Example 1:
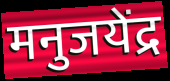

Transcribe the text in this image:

मनुजयेंद्र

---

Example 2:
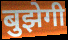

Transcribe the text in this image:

बुझेगी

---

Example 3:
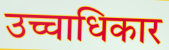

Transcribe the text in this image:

उच्चाधिकार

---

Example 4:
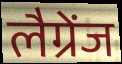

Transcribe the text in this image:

लैग्रेंज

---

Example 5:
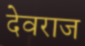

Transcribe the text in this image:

देवराज